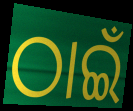
ଠାଇଁ